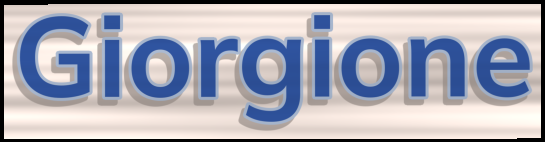
Giorgione